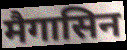
मैगासिन